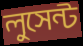
লুসেন্ট